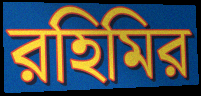
রহিমির